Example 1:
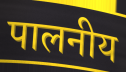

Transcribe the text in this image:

पालनीय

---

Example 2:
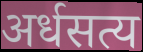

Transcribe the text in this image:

अर्धसत्य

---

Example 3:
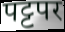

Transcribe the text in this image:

पट्टपर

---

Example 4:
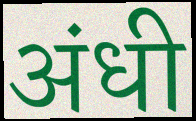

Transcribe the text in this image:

अंधी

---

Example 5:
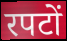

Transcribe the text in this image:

रपटों